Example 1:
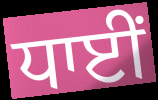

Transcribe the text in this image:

ਧਾਈਂ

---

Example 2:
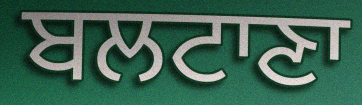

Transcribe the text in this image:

ਬਲਟਾਣਾ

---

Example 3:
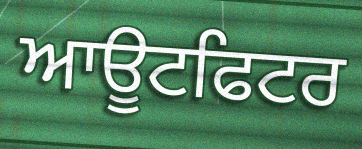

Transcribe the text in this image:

ਆਊਟਫਿਟਰ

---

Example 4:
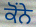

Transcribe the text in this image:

ਕੋਂਨੇ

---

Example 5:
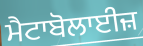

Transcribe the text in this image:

ਮੈਟਾਬੋਲਾਈਜ਼